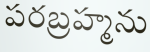
పరబ్రహ్మను